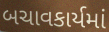
બચાવકાર્યમાં